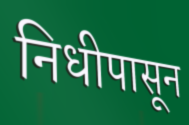
निधीपासून